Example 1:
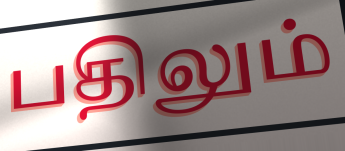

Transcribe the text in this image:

பதிலும்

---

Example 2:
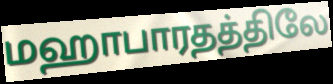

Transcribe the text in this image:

மஹாபாரதத்திலே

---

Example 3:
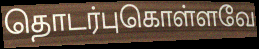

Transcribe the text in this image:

தொடர்புகொள்ளவே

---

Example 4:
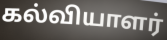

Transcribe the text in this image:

கல்வியாளர்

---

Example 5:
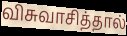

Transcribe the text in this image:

விசுவாசித்தால்